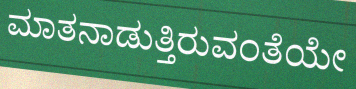
ಮಾತನಾಡುತ್ತಿರುವಂತೆಯೇ